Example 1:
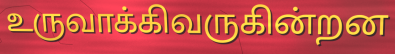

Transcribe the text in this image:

உருவாக்கிவருகின்றன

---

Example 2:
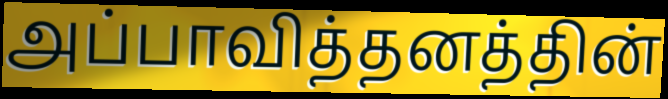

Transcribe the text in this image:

அப்பாவித்தனத்தின்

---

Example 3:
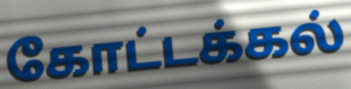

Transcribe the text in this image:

கோட்டக்கல்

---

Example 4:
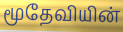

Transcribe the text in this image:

மூதேவியின்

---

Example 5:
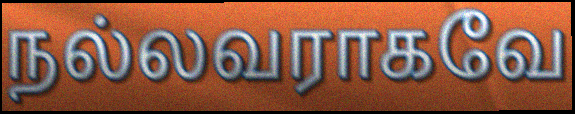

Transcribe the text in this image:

நல்லவராகவே